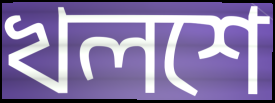
খলশে